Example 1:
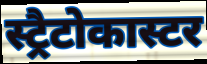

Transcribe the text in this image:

स्ट्रैटोकास्टर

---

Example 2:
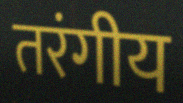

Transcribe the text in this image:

तरंगीय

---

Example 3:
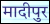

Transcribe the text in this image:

मादीपुर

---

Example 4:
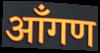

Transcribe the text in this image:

आँगण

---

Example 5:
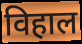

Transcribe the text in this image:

विहाल